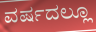
ವರ್ಷದಲ್ಲೂ